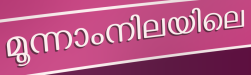
മൂന്നാംനിലയിലെ